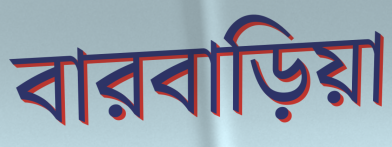
বারবাড়িয়া